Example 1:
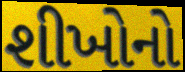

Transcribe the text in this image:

શીખોનો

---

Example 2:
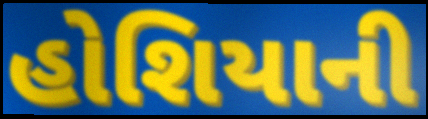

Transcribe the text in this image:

હોશિયાની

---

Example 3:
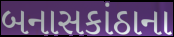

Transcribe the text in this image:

બનાસકાંઠાના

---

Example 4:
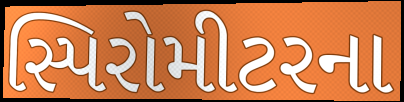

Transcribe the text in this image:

સ્પિરોમીટરના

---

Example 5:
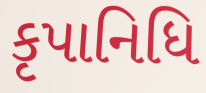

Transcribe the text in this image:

કૃપાનિધિ